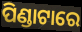
ପିଣ୍ଡାଟାରେ